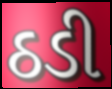
ઠડી